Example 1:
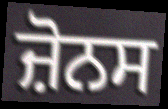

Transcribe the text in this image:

ਜ਼ੋਨਸ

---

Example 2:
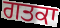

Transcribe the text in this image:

ਗਤਕਾ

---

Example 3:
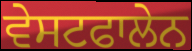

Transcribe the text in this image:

ਵੇਸਟਫਾਲੇਨ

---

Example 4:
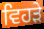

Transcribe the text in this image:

ਵਿਹੜੇ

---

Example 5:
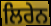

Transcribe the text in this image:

ਲਿਰੇਨ